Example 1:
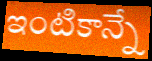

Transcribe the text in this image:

ఇంటికాన్నే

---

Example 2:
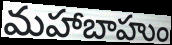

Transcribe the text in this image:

మహాబాహుం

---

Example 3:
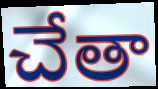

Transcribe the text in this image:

చేతా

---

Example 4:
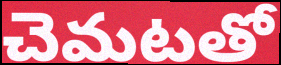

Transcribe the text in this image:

చెమటతో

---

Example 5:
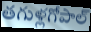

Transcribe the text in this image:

తగుళ్లగోపాల్